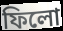
ফিলো